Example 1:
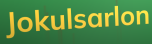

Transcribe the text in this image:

Jokulsarlon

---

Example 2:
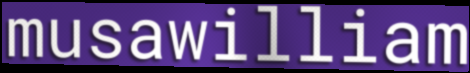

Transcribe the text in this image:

musawilliam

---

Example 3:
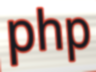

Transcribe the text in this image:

php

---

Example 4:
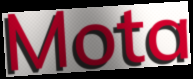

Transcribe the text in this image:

Mota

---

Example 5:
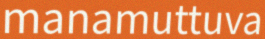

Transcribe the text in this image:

manamuttuva